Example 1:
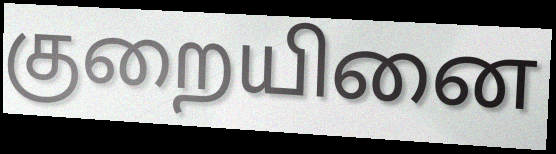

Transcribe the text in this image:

குறையினை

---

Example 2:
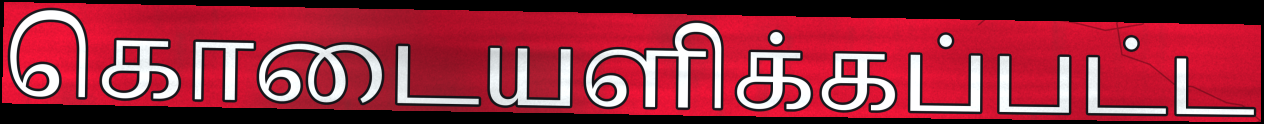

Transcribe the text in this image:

கொடையளிக்கப்பட்ட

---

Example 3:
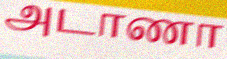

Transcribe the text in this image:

அடாணா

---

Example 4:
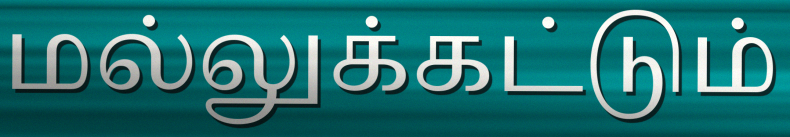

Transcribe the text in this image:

மல்லுக்கட்டும்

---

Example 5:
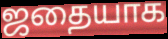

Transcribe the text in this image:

ஜதையாக